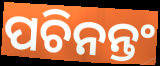
ପଚିନନ୍ତଂ